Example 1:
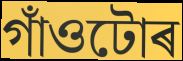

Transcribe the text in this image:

গাঁওটোৰ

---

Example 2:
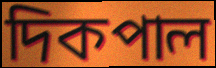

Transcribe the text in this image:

দিকপাল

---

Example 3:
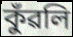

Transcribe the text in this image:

কুঁৱলি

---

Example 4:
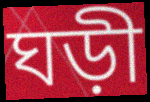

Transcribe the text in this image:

ঘড়ী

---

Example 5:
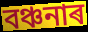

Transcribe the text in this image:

বঞ্চনাৰ